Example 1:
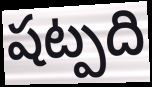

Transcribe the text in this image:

షట్పది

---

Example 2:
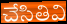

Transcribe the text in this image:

చేసితివి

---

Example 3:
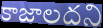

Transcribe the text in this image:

కాజాలదని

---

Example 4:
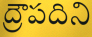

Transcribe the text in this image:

ద్రౌపదిని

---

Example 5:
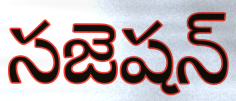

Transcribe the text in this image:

సజెషన్